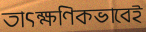
তাৎক্ষণিকভাবেই